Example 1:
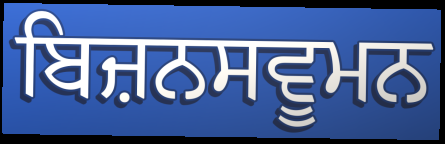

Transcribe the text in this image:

ਬਿਜ਼ਨਸਵੂਮਨ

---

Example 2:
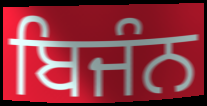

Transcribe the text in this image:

ਬਿਜੰਨ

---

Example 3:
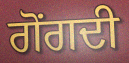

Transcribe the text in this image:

ਗੋਂਗਦੀ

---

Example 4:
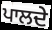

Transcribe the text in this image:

ਪਾਲਦੇ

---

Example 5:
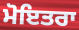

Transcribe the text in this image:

ਮੋਇਤਰਾ